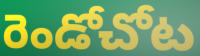
రెండోచోట